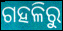
ଗହଳିରୁ